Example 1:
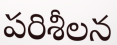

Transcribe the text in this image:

పరిశీలన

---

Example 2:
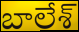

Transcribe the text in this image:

బాలేశ్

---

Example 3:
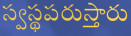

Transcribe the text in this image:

స్వస్థపరుస్తారు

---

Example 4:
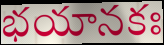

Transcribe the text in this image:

భయానకః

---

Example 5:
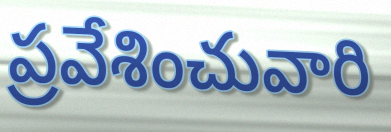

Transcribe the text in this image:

ప్రవేశించువారి